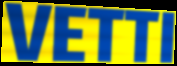
VETTI